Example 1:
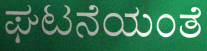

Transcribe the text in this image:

ಘಟನೆಯಂತೆ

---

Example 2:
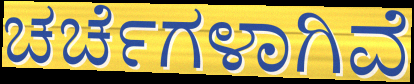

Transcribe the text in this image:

ಚರ್ಚೆಗಳಾಗಿವೆ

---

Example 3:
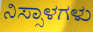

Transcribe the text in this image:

ನಿಸ್ಸಾಳಗಳು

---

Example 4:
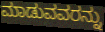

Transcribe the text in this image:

ಮಾಡುವವರನ್ನು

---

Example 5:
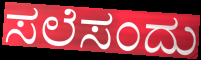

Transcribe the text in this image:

ಸಲೆಸಂದು